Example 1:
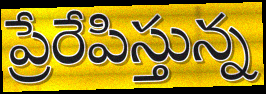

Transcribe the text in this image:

ప్రేరేపిస్తున్న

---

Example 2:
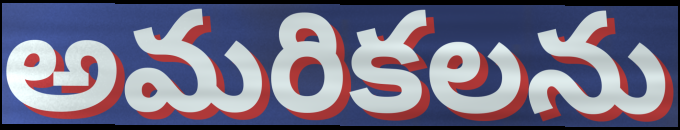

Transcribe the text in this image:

అమరికలను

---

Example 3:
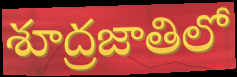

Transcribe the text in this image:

శూద్రజాతిలో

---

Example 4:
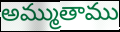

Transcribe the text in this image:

అమ్ముతాము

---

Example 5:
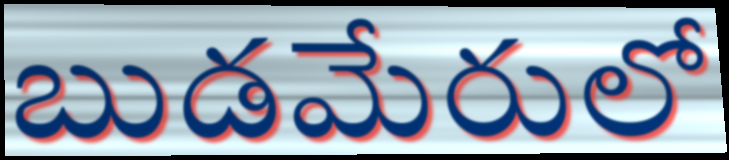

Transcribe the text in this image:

బుడమేరులో